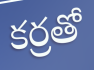
కర్రతో